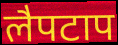
लैपटाप